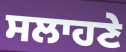
ਸਲਾਹਣੇ